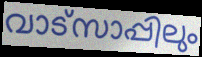
വാട്സാപ്പിലും